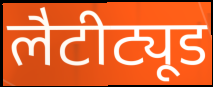
लैटीट्यूड